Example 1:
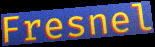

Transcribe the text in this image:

Fresnel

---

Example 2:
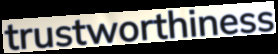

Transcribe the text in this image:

trustworthiness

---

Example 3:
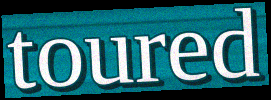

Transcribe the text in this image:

toured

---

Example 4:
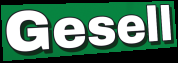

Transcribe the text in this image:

Gesell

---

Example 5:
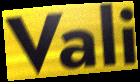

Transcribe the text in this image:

Vali